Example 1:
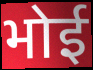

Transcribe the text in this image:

भोई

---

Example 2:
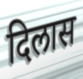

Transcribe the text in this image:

दिलास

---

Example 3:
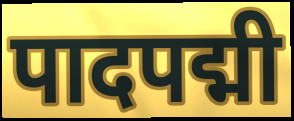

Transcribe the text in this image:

पादपद्मी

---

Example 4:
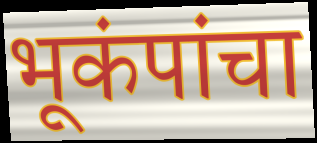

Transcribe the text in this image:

भूकंपांचा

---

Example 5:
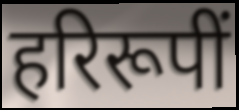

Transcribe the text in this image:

हरिरूपीं